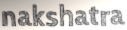
nakshatra